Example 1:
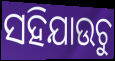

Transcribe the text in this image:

ସହିଯାଉଚୁ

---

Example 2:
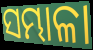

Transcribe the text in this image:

ସମ୍ଭାଳା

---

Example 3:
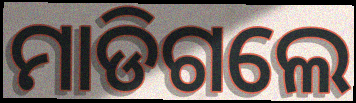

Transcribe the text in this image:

ମାଡିଗଲେ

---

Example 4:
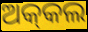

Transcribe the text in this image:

ଅକ୍‍କଲ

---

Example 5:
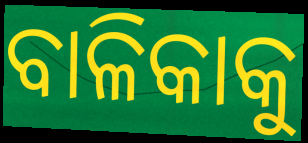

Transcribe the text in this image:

ବାଳିକାକୁ